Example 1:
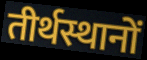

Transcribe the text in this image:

तीर्थस्थानों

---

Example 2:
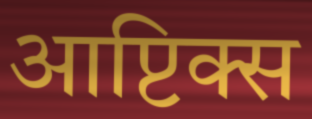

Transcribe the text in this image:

आप्टिक्स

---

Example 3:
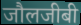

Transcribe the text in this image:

जौलजीबी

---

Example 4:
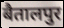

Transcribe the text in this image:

बैतालपुर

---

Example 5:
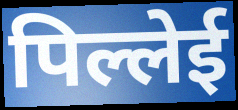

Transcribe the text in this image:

पिल्लेई